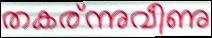
തകര്ന്നുവീണു